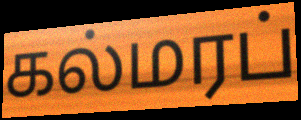
கல்மரப்